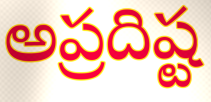
అప్రదిష్ట